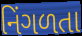
નિંગળતા